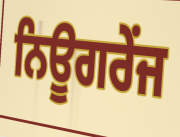
ਨਿਊਗਰੇਂਜ